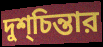
দুশ্‌চিন্তার